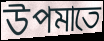
উপমাতে